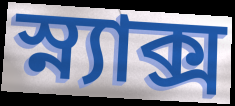
স্ন্যাক্স